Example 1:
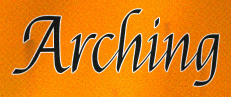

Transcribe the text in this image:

Arching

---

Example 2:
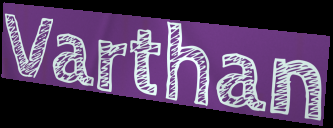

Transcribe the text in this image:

Varthan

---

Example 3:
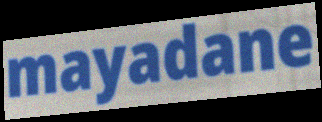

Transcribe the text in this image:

mayadane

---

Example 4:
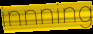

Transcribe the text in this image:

innning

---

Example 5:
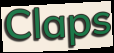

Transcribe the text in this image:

Claps